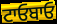
ਟਾਓਬਾਓ